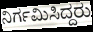
ನಿರ್ಗಮಿಸಿದ್ದರು